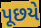
પૂછયે